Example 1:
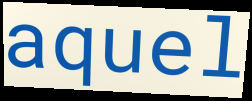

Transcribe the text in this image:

aquel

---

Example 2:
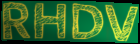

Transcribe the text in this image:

RHDV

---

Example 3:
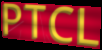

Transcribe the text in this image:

PTCL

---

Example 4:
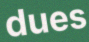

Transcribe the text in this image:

dues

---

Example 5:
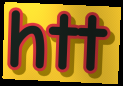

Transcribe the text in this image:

htt